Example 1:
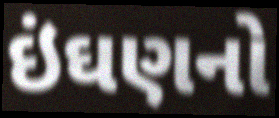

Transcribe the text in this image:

ઇંઘણનો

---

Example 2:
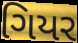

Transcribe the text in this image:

ગિયર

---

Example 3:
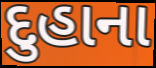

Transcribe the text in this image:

દુહાના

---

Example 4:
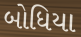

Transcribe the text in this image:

બોધિયા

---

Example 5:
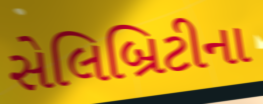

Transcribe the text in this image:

સેલિબ્રિટીના